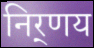
निर्णय